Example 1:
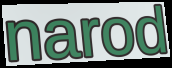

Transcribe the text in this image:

narod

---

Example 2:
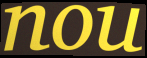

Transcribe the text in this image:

nou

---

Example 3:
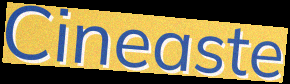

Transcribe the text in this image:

Cineaste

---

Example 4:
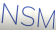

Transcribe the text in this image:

NSM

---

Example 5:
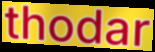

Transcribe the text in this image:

thodar